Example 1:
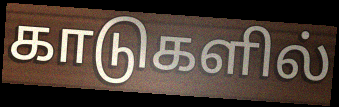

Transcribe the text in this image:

காடுகளில்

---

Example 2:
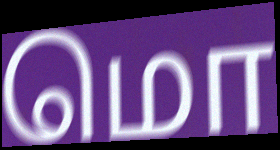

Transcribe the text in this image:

மொ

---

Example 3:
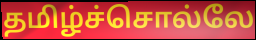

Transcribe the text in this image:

தமிழ்ச்சொல்லே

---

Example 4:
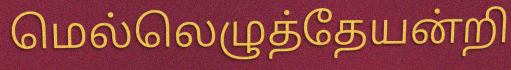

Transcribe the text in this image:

மெல்லெழுத்தேயன்றி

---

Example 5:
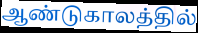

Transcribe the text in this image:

ஆண்டுகாலத்தில்